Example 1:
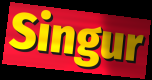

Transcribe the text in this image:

Singur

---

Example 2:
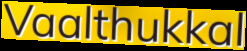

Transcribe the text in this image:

Vaalthukkal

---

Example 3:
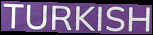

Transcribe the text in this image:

TURKISH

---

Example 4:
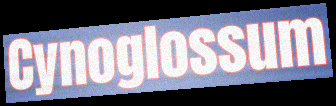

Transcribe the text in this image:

Cynoglossum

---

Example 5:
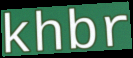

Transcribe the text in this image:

khbr